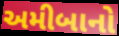
અમીબાનો